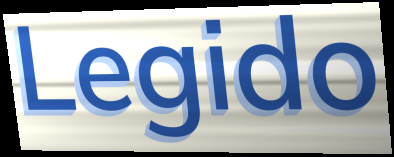
Legido